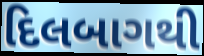
દિલબાગથી